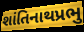
શાંતિનાથપ્રભુ